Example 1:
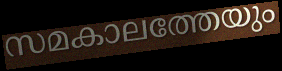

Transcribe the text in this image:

സമകാലത്തേയും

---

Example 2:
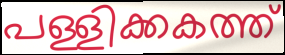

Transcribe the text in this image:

പള്ളിക്കകത്ത്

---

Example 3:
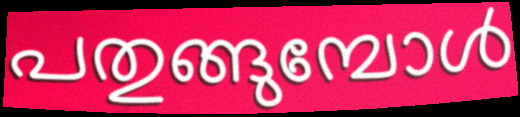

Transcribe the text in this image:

പതുങ്ങുമ്പോൾ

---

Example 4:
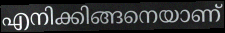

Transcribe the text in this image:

എനിക്കിങ്ങനെയാണ്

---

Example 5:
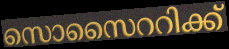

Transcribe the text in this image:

സൊസൈററിക്ക്